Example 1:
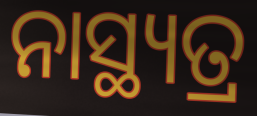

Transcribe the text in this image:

ନାସ୍ଥ୍ୟତ୍ର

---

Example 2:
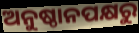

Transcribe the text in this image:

ଅନୁଷ୍ଠାନପକ୍ଷରୁ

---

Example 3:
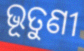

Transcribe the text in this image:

ଭୂତୁଣୀ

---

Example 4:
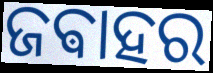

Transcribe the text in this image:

ଜଵାହର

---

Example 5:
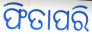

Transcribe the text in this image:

ଫିତାପରି